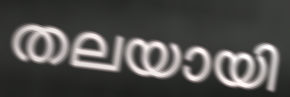
തലയായി